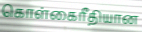
கொள்கைரீதியான